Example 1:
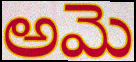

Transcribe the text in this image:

అమె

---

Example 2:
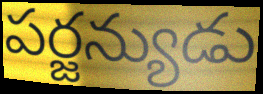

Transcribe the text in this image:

పర్జన్యుడు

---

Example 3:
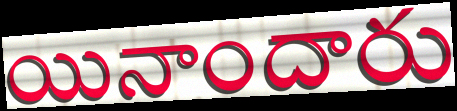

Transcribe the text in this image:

యినాందారు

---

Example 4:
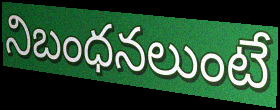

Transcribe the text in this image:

నిబంధనలుంటే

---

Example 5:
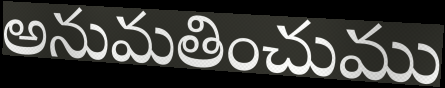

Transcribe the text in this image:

అనుమతించుము